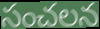
సంచలన